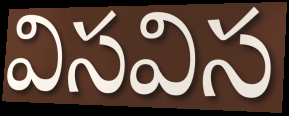
విసవిస